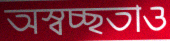
অস্বচ্ছতাও